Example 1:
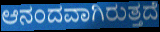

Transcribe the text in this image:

ಆನಂದವಾಗಿರುತ್ತದೆ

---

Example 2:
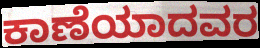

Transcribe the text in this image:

ಕಾಣೆಯಾದವರ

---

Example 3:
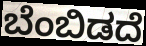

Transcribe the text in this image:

ಬೆಂಬಿಡದೆ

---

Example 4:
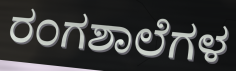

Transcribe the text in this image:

ರಂಗಶಾಲೆಗಳ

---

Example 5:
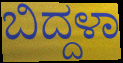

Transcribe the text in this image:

ಬಿದ್ದಳಾ